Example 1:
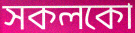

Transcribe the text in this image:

সকলকো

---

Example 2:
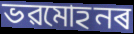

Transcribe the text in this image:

ভৱমোহনৰ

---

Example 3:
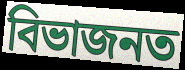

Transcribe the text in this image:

বিভাজনত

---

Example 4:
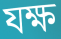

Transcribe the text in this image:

যক্ষ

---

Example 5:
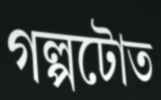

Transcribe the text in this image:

গল্পটোত